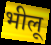
भीलू